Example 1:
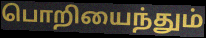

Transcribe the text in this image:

பொறியைந்தும்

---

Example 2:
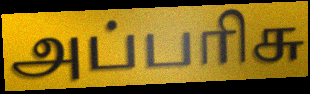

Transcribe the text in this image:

அப்பரிசு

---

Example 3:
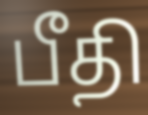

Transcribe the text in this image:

பீதி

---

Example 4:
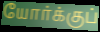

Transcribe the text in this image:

யோர்க்குப்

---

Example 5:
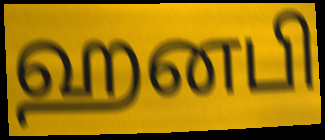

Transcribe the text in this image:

ஹனபி